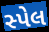
સ્પેલ